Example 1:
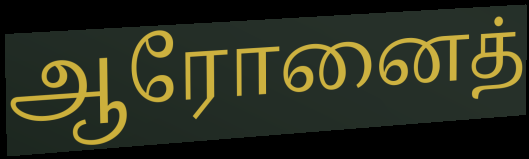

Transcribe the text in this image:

ஆரோனைத்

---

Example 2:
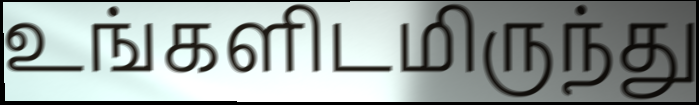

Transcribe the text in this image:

உங்களிடமிருந்து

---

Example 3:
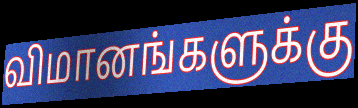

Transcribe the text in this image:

விமானங்களுக்கு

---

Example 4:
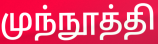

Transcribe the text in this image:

முந்நூத்தி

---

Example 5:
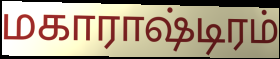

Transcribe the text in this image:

மகாராஷ்டிரம்